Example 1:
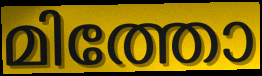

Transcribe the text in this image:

മിത്തോ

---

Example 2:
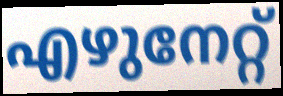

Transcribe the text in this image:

എഴുനേറ്റ്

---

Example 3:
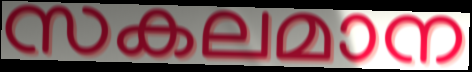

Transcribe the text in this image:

സകലമാന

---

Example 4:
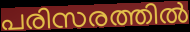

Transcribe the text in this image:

പരിസരത്തിൽ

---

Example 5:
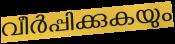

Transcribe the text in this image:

വീർപ്പിക്കുകയും